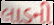
લાડની